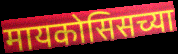
मायकोसिसच्या